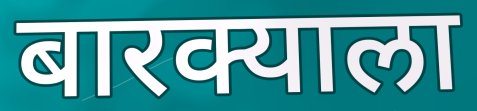
बारक्याला